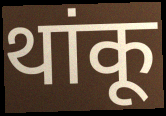
थांकू